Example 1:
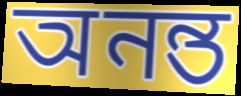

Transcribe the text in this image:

অনন্ত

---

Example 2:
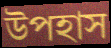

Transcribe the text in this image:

উপহাস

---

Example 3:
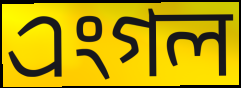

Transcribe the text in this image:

এংগল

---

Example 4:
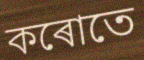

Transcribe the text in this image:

কৰোতে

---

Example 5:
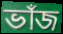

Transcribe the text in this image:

ভাঁজ